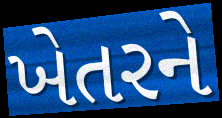
ખેતરને